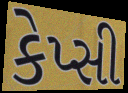
કેપ્સી